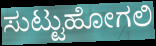
ಸುಟ್ಟುಹೋಗಲಿ